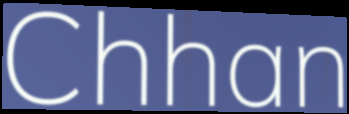
Chhan